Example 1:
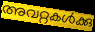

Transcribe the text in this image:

അവറ്റകൾക്കു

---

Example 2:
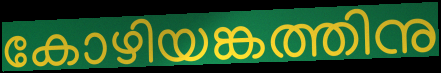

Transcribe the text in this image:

കോഴിയങ്കത്തിനു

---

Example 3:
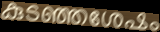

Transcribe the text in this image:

കുടഞ്ഞശേഷം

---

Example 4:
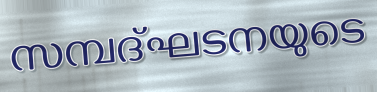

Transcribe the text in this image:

സമ്പദ്ഘടനയുടെ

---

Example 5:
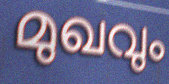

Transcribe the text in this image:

മുഖവും